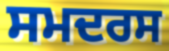
ਸਮਦਰਸ